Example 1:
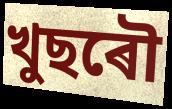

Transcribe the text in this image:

খুছৰৌ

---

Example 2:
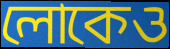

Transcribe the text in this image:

লোকেও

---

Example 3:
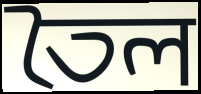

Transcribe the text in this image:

তৈল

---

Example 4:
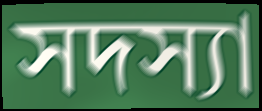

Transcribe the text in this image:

সদস্যা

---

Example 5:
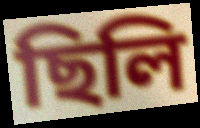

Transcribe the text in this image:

ছিলি